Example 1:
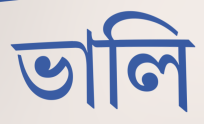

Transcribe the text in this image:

ভালি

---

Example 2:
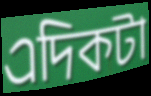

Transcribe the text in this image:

এদিকটা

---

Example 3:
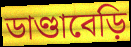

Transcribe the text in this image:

ডাণ্ডাবেড়ি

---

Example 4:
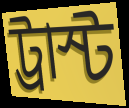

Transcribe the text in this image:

ট্রাস্ট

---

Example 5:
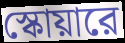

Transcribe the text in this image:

স্কোয়ারে